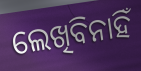
ଲେଖିବିନାହିଁ